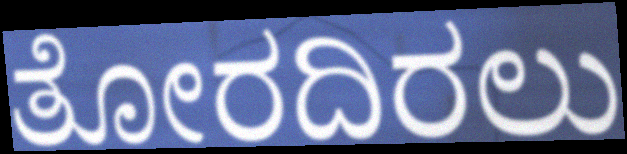
ತೋರದಿರಲು